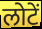
लोटें